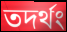
তদর্থং